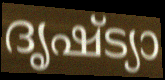
ദൃഷ്ട്യാ